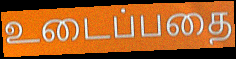
உடைப்பதை